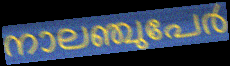
നാലഞ്ചുപേർ